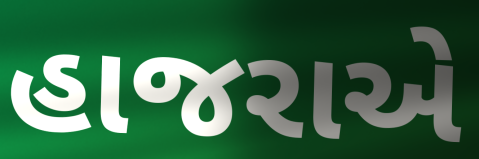
હાજરાએ